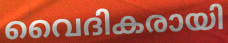
വൈദികരായി